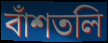
বাঁশতলি